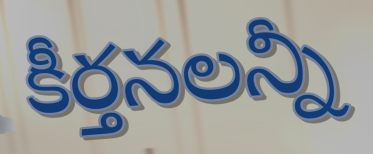
కీర్తనలన్నీ